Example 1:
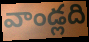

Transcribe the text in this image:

వాండ్లది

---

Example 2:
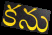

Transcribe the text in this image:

కను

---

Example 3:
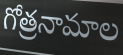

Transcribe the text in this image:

గోత్రనామాల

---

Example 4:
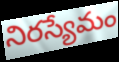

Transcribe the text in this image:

నిరస్యేమం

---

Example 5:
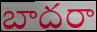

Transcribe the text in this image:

బాదరా